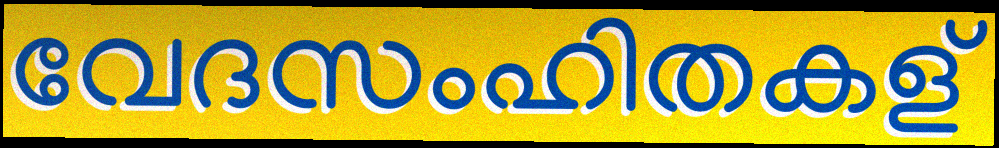
വേദസംഹിതകള്